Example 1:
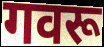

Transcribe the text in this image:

गवरू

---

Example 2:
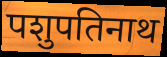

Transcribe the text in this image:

पशुपतिनाथ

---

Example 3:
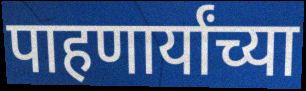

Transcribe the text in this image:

पाहणार्यांच्या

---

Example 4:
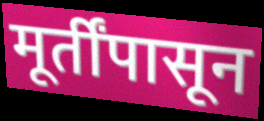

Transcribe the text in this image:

मूर्तींपासून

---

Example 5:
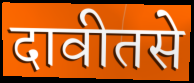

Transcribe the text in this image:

दावीतसे